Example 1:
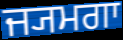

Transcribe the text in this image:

ਜ੍ਯਮਗਾ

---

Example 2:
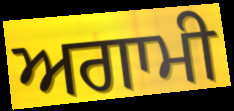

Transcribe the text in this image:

ਅਗਾਮੀ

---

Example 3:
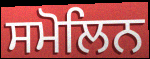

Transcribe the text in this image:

ਸਮੋਲਿਨ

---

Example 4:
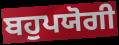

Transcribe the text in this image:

ਬਹੁਪਯੋਗੀ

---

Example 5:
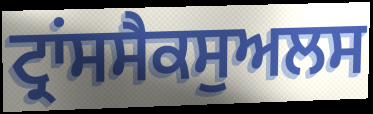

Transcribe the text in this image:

ਟ੍ਰਾਂਸਸੈਕਸੁਅਲਸ